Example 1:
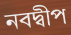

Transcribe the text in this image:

নবদ্বীপ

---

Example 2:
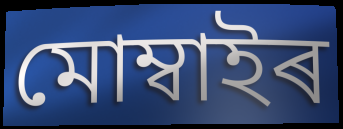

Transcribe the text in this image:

মোম্বাইৰ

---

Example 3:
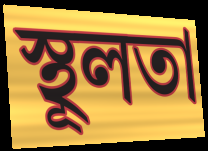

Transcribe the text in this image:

স্থূলতা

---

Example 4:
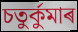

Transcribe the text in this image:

চতুৰ্কুমাৰ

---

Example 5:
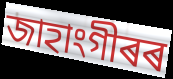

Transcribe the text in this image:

জাহাংগীৰৰ